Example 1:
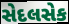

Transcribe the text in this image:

સેદલસેક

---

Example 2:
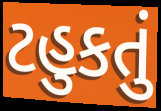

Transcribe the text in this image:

ટહુકતું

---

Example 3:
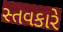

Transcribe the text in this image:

સ્તવકારે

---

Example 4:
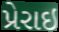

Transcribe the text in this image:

પ્રેરાઇ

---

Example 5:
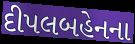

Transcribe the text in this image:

દીપલબહેનના